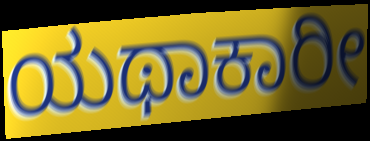
ಯಥಾಕಾರೀ